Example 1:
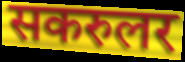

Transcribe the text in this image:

सकरुलर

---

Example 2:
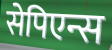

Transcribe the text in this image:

सेपिएन्स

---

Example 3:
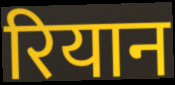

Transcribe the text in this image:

रियान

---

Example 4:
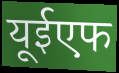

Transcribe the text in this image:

यूईएफ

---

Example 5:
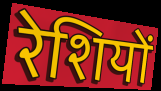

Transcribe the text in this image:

रेशियों